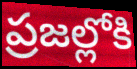
ప్రజల్లోకి